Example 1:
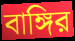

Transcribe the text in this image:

বাঙ্গির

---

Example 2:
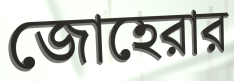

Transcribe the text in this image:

জোহেরার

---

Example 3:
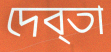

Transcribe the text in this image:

দেব্‌তা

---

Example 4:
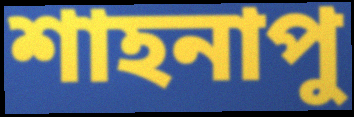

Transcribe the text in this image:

শাহনাপু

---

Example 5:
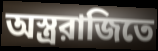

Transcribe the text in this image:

অস্ত্ররাজিতে